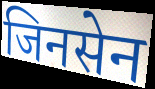
जिनसेन